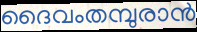
ദൈവംതമ്പുരാൻ